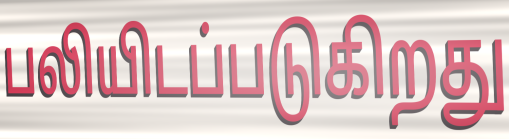
பலியிடப்படுகிறது